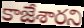
కాజేశారని